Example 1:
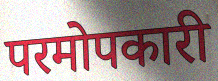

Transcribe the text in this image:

परमोपकारी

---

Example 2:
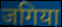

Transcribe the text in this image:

जगिया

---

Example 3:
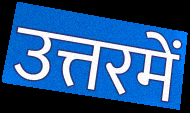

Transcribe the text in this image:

उत्तरमें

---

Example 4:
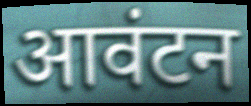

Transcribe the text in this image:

आवंटन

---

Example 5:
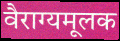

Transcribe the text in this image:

वैराग्यमूलक